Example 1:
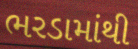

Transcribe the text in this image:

ભરડામાંથી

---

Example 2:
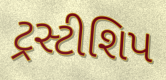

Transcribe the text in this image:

ટ્રસ્ટીશિપ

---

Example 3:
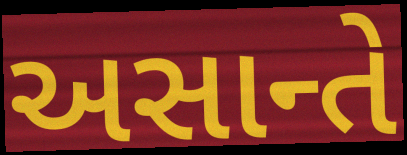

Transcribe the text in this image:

અસાન્તે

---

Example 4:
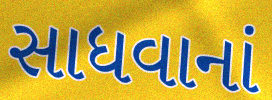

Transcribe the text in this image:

સાધવાનાં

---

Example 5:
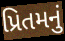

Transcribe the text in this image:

પ્રિતમનું